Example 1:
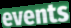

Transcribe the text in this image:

events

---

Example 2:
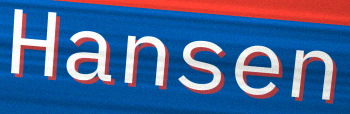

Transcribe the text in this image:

Hansen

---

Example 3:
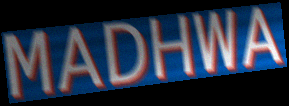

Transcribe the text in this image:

MADHWA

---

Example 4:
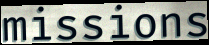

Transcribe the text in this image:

missions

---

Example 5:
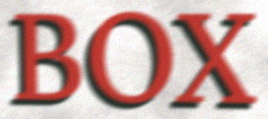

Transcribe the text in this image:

BOX